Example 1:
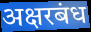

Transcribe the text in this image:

अक्षरबंध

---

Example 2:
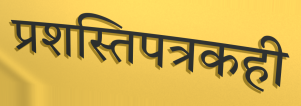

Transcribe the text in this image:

प्रशस्तिपत्रकही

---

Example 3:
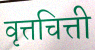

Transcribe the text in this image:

वृत्तचित्ती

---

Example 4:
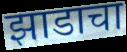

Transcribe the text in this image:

झाडाचा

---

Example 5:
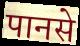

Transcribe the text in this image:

पानसे